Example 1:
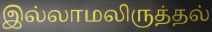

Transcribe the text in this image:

இல்லாமலிருத்தல்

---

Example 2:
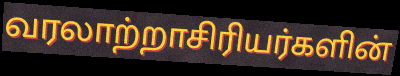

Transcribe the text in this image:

வரலாற்றாசிரியர்களின்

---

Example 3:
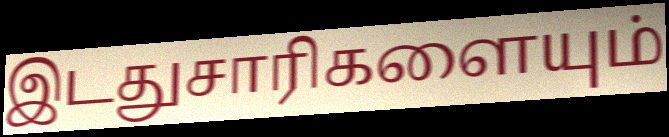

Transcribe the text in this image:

இடதுசாரிகளையும்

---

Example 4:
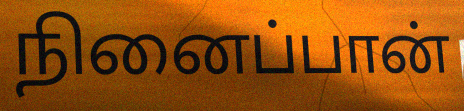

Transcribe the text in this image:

நினைப்பான்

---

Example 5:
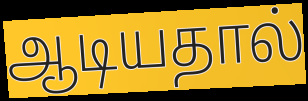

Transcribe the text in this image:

ஆடியதால்